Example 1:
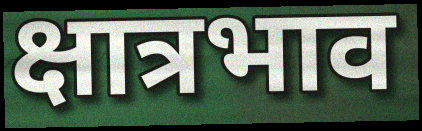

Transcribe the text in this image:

क्षात्रभाव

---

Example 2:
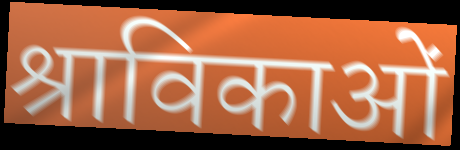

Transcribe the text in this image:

श्राविकाओं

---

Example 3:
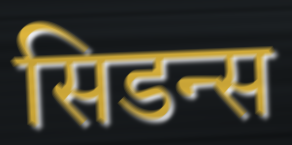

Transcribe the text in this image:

सिडन्स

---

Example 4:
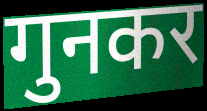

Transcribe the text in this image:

गुनकर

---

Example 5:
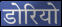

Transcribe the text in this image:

डोरियो